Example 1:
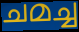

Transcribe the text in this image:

ചമച്ച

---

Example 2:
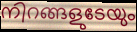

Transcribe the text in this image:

നിറങ്ങളുടേയും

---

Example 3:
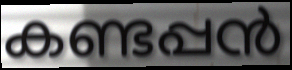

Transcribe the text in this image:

കണ്ടപ്പൻ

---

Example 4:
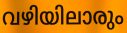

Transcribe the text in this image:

വഴിയിലാരും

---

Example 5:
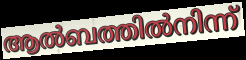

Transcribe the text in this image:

ആൽബത്തിൽനിന്ന്